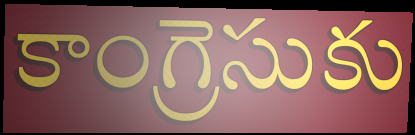
కాంగ్రెసుకు